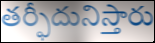
తర్ఫీదునిస్తారు